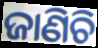
ଜାଣିଚି